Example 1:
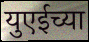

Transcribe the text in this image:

युएईच्या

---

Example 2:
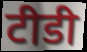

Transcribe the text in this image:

टीडी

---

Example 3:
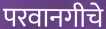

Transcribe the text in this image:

परवानगीचे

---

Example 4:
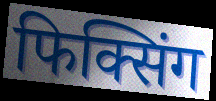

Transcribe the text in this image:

फिक्सिंग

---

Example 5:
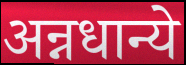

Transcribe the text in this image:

अन्नधान्ये